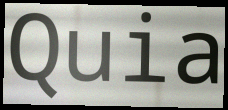
Quia